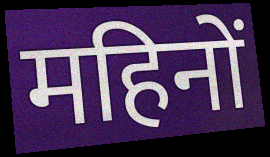
महिनों